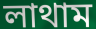
লাথাম